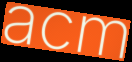
acm